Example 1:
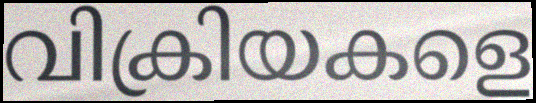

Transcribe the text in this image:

വിക്രിയകളെ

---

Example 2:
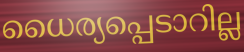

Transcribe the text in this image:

ധൈര്യപ്പെടാറില്ല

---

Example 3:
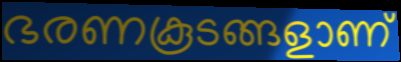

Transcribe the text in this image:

ഭരണകൂടങ്ങളാണ്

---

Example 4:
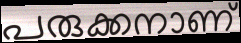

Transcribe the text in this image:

പരുക്കനാണ്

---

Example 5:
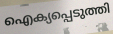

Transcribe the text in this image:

ഐക്യപ്പെടുത്തി